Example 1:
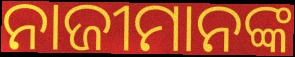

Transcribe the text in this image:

ନାଜୀମାନଙ୍କ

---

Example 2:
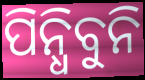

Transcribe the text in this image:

ପିନ୍ଧିବୁନି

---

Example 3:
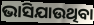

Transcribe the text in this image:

ଭାସିଯାଉଥିବା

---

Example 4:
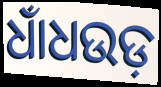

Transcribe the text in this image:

ଧାଁଧଉଡ଼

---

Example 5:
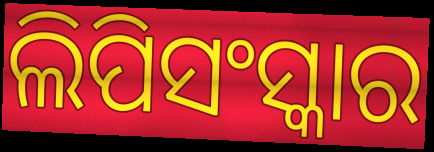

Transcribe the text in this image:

ଲିପିସଂସ୍କାର